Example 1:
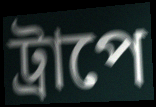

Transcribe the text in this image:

ট্রাপে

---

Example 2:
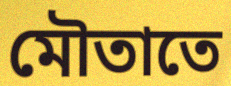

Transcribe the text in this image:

মৌতাতে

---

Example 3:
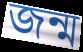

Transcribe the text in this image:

জন্ম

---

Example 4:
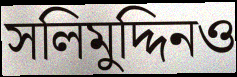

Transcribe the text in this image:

সলিমুদ্দিনও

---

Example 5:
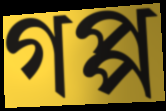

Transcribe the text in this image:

গপ্প